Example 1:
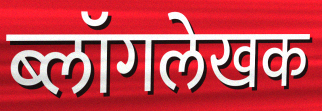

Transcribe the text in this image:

ब्लॉगलेखक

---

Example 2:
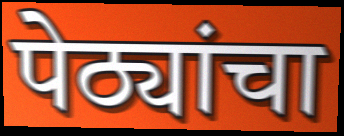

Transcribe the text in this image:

पेठ्यांचा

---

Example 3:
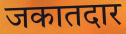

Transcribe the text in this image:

जकातदार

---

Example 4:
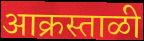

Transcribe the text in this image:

आक्रस्ताळी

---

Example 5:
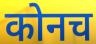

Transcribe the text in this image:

कोनच